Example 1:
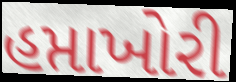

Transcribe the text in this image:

હપ્તાખોરી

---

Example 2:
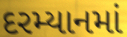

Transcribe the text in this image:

દરમ્યાનમાં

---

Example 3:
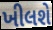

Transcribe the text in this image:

ખીલશે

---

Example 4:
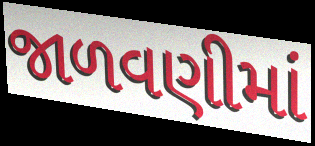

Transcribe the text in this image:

જાળવણીમાં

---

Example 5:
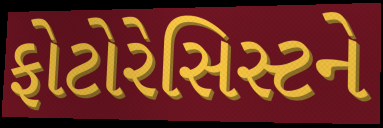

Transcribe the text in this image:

ફોટોરેસિસ્ટને